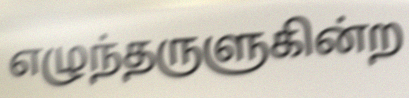
எழுந்தருளுகின்ற